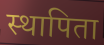
स्थापिता